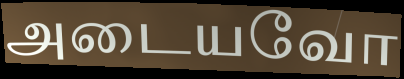
அடையவோ